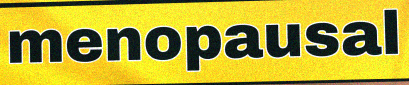
menopausal